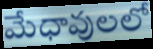
మేధావులలో